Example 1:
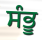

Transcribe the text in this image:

ਸੰਭੂ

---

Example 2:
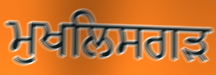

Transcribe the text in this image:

ਮੁਖਲਿਸਗੜ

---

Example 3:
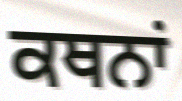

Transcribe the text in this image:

ਕਥਨਾਂ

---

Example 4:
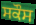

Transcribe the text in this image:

ਸਕੌਸ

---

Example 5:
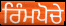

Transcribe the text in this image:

ਰਿੰਮਪੋਚੇ